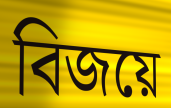
বিজয়ে